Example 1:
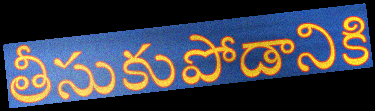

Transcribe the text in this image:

తీసుకుపోడానికి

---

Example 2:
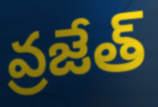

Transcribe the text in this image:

వ్రజేత్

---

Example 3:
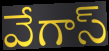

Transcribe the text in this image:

వేగాస్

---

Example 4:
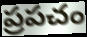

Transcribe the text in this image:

ప్రపచం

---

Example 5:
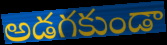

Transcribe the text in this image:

అడగకుండా